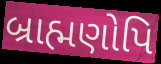
બ્રાહ્મણોપિ